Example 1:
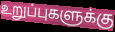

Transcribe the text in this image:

உறுப்புகளுக்கு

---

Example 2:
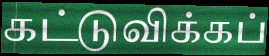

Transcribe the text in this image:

கட்டுவிக்கப்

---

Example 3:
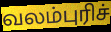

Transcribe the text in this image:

வலம்புரிச்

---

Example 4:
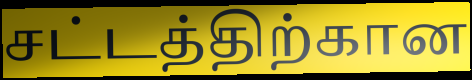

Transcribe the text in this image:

சட்டத்திற்கான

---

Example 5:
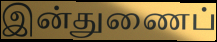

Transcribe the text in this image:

இன்துணைப்